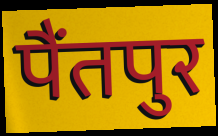
पैंतपुर